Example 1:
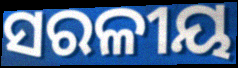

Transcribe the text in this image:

ସରଳୀୟ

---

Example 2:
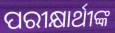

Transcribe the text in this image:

ପରୀକ୍ଷାର୍ଥୀଙ୍କ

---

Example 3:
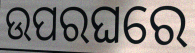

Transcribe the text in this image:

ଉପରଘରେ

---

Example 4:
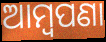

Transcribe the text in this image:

ଆମ୍ବପଣା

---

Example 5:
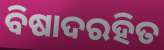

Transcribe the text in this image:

ବିଷାଦରହିତ